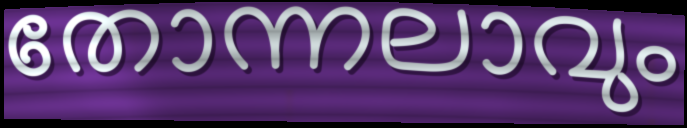
തോന്നലാവും